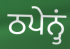
ਠਪੇਨ੍ਤਂ